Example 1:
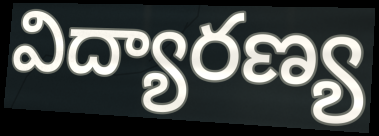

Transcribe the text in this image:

విద్యారణ్య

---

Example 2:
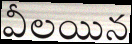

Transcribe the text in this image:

వీలయిన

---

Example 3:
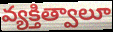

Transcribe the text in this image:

వ్యక్తిత్వాలూ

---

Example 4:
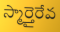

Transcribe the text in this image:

స్మార్తైరేవ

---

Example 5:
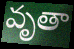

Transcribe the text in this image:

వృతా